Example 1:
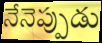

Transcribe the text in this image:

నేనెప్పుడు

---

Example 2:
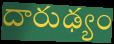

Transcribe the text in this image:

దారుఢ్యం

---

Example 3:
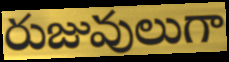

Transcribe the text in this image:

రుజువులుగా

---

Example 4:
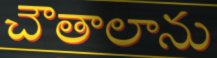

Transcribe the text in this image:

చౌతాలాను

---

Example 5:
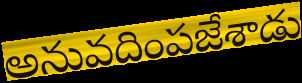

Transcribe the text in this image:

అనువదింపజేశాడు